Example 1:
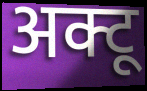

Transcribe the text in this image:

अक्टू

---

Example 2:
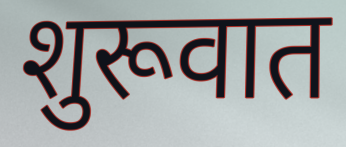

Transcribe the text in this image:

शुरूवात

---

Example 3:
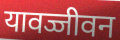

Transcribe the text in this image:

यावज्जीवन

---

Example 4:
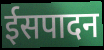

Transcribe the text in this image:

ईसपादन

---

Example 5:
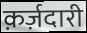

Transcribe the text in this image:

क़र्ज़दारी